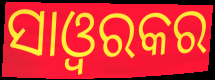
ସାଓ୍ୱରକର